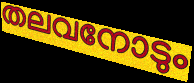
തലവനോടും